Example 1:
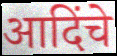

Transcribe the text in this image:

आदिंचे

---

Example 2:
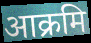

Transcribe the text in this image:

आक्रमि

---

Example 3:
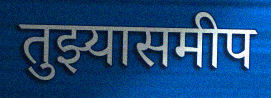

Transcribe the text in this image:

तुझ्यासमीप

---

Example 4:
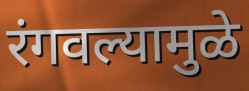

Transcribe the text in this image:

रंगवल्यामुळे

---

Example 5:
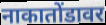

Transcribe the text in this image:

नाकातोंडावर